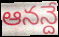
ఆనన్దే